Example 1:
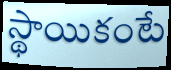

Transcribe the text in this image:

స్థాయికంటే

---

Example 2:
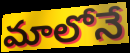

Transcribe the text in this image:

మాలోనే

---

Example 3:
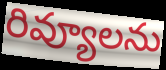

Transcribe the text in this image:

రివ్యూలను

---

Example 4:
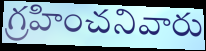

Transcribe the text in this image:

గ్రహించనివారు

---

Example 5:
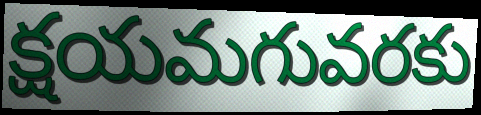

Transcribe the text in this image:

క్షయమగువరకు